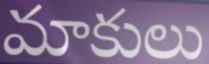
మాకులు